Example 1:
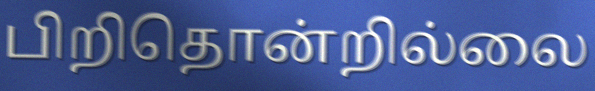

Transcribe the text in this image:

பிறிதொன்றில்லை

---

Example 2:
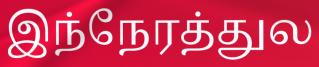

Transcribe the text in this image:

இந்நேரத்துல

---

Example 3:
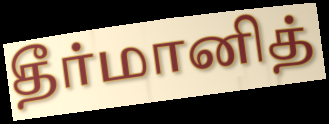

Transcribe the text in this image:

தீர்மானித்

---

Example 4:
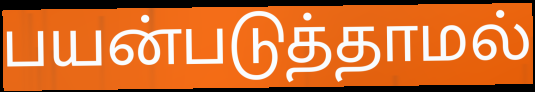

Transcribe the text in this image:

பயன்படுத்தாமல்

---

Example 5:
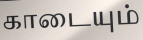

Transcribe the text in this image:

காடையும்